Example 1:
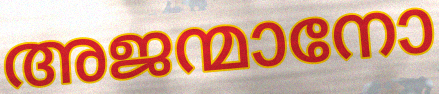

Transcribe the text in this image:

അജന്മാനോ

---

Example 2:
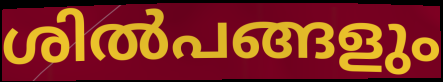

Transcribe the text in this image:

ശിൽപങ്ങളും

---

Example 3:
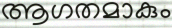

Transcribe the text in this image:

ആഗതമാകും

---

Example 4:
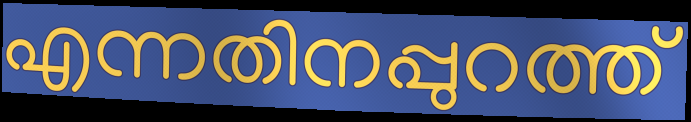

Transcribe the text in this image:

എന്നതിനപ്പുറത്ത്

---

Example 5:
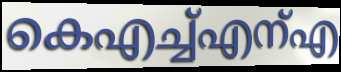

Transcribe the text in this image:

കെഎച്ച്എന്എ